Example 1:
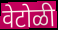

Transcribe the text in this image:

वेटोळी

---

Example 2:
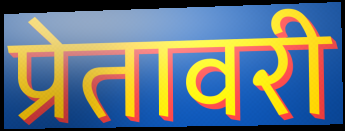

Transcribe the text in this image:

प्रेतावरी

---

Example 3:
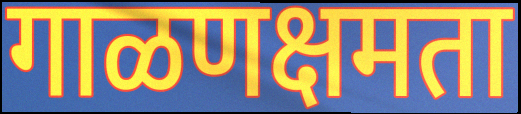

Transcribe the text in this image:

गाळणक्षमता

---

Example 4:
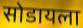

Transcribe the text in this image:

सोडायला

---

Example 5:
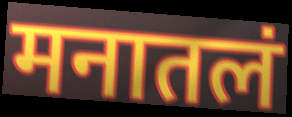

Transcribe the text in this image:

मनातलं